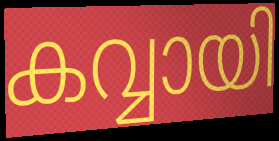
കവ്വായി